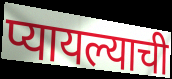
प्यायल्याची